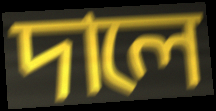
দালে